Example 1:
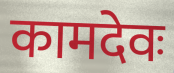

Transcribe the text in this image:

कामदेवः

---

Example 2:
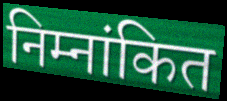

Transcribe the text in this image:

निम्नांकित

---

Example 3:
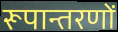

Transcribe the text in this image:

रूपान्तरणों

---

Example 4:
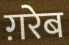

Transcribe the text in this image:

ग़रेब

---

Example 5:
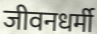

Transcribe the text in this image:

जीवनधर्मी